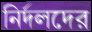
নির্দলদের